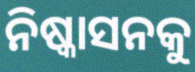
ନିଷ୍କାସନକୁ